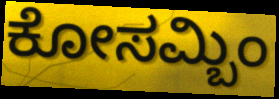
ಕೋಸಮ್ಬಿಂ